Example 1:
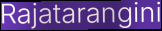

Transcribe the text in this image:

Rajatarangini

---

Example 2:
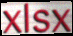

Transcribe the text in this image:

xlsx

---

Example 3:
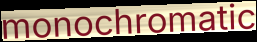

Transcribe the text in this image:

monochromatic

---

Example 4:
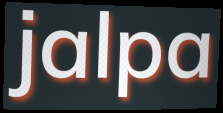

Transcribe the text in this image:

jalpa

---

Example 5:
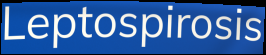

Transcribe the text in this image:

Leptospirosis